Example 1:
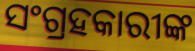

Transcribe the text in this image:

ସଂଗ୍ରହକାରୀଙ୍କ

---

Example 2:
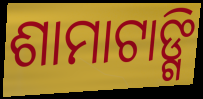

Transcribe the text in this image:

ଶାମାଟାଙ୍ଗି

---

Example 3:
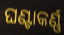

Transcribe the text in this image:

ଘଣ୍ଟାକର୍ଣ୍ଣ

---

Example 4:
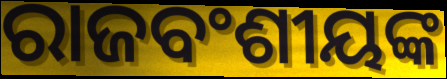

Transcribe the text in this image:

ରାଜବଂଶୀୟଙ୍କ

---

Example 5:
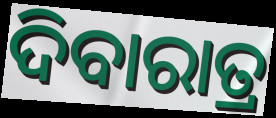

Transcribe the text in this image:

ଦିବାରାତ୍ର